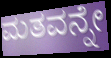
ಮತವನ್ನೇ